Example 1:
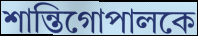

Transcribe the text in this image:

শান্তিগোপালকে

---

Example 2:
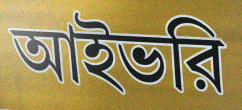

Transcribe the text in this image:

আইভরি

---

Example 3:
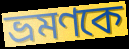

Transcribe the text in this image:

ভ্রমণকে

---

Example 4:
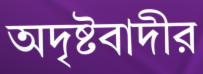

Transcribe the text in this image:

অদৃষ্টবাদীর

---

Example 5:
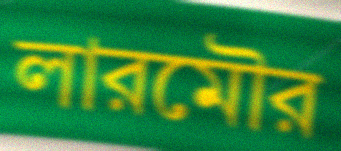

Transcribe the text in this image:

লারমৌর